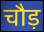
चौड़